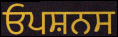
ਓਪਸ਼ਨਸ